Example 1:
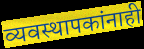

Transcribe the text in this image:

व्यवस्थापकांनाही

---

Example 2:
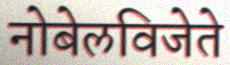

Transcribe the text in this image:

नोबेलविजेते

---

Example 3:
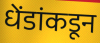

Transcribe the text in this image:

धेंडांकडून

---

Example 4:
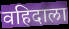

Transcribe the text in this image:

वहिदाला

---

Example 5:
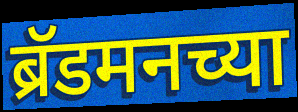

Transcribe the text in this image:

ब्रॅडमनच्या